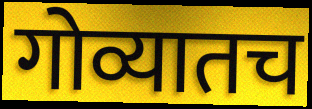
गोव्यातच